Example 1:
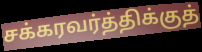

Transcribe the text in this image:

சக்கரவர்த்திக்குத்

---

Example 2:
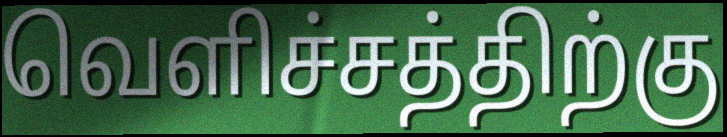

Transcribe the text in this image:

வெளிச்சத்திற்கு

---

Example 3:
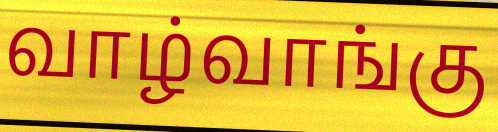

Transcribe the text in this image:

வாழ்வாங்கு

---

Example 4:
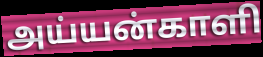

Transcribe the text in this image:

அய்யன்காளி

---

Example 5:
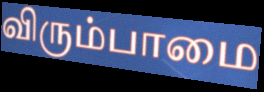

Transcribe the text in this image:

விரும்பாமை